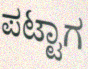
ಪಟ್ಟಾಗ